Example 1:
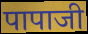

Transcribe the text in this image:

पापाजी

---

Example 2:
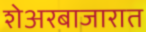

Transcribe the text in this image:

शेअरबाजारात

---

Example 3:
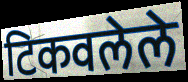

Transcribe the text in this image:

टिकवलेले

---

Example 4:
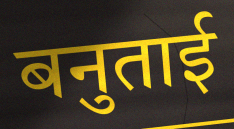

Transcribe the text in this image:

बनुताई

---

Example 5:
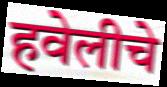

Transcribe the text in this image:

हवेलीचे